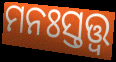
ମନଃସ୍ତତ୍ତ୍ଵ